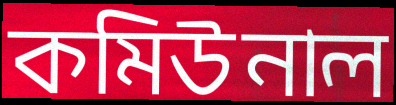
কমিউনাল